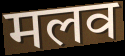
मलव